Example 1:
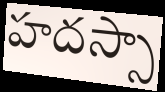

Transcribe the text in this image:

హదస్సా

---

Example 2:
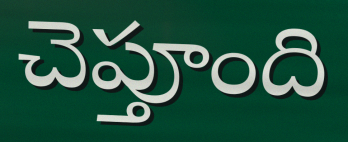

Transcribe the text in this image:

చెప్తూంది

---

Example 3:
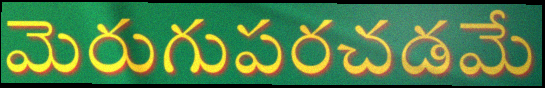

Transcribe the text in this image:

మెరుగుపరచడమే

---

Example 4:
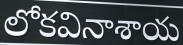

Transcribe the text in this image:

లోకవినాశాయ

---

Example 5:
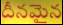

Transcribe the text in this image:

దీనమైన